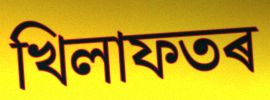
খিলাফতৰ